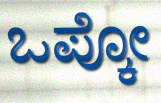
ಒಪ್ಕೋ